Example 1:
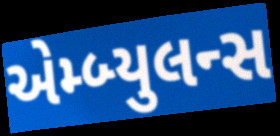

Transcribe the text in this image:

એમ્બ્યુલન્સ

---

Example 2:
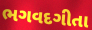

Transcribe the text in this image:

ભગવદગીતા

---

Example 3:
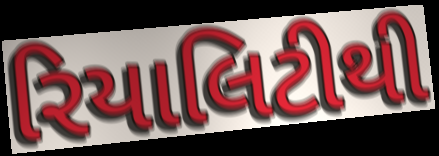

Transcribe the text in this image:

રિયાલિટીથી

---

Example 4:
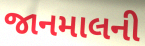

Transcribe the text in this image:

જાનમાલની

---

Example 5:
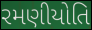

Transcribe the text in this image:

રમણીયોતિ